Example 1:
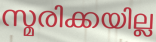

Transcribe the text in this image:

സ്മരിക്കയില്ല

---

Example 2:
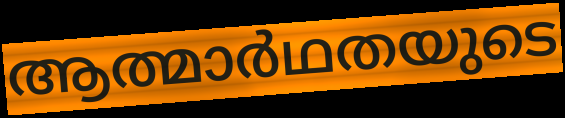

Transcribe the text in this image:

ആത്മാർഥതയുടെ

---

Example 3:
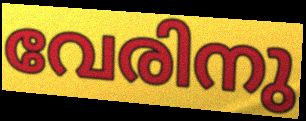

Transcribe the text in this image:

വേരിനു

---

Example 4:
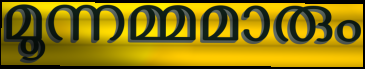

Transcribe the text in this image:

മൂന്നമ്മമാരും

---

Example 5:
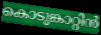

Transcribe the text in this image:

കൊടുങ്കാറ്റിൻ